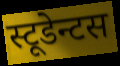
स्टूडेन्टस